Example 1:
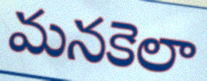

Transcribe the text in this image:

మనకెలా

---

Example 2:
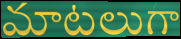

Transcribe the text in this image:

మాటలుగా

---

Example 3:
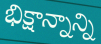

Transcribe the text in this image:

భిక్షాన్నాన్ని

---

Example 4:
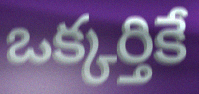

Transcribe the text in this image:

ఒక్కర్తికే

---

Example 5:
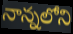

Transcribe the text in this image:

నాన్నలోని